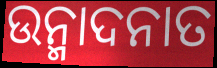
ଉନ୍ମାଦନାତ